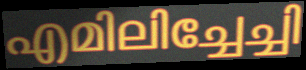
എമിലിച്ചേച്ചി